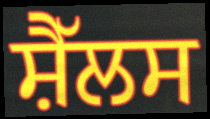
ਸ਼ੈੱਲਸ